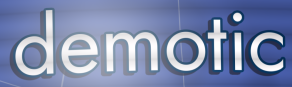
demotic